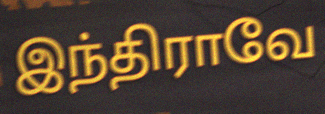
இந்திராவே